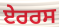
ਏਰਰਸ